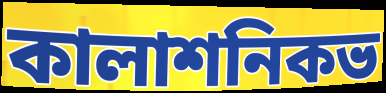
কালাশনিকভ